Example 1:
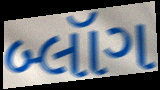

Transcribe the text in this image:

બ્લૉગ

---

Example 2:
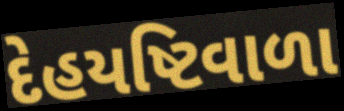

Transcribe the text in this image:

દેહયષ્ટિવાળા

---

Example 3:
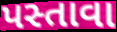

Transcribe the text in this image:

પસ્તાવા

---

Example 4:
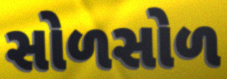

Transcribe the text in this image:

સોળસોળ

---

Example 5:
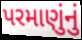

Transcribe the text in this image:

પરમાણુંનું